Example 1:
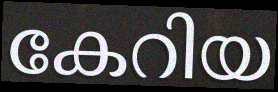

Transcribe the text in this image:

കേറിയ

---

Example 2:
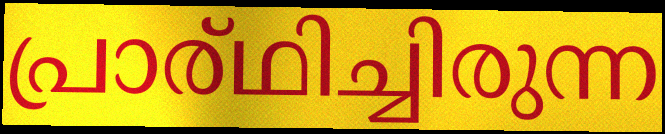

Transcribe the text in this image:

പ്രാര്ഥിച്ചിരുന്ന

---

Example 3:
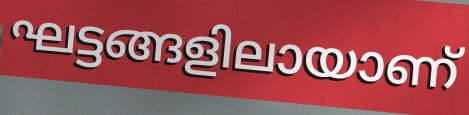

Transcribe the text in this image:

ഘട്ടങ്ങളിലായാണ്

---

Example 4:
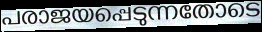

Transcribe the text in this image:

പരാജയപ്പെടുന്നതോടെ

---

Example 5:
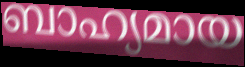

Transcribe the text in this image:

ബാഹ്യമായ